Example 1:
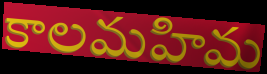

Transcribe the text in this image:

కాలమహిమ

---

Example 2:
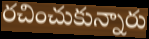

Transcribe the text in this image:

రచించుకున్నారు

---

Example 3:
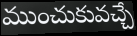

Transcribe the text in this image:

ముంచుకువచ్చే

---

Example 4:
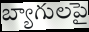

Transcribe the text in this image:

బ్యాగులపై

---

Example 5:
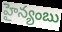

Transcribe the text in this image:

హైన్యంబు